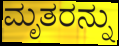
ಮೃತರನ್ನು